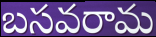
బసవరామ